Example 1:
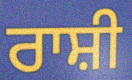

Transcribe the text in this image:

ਰਾਸ਼ੀ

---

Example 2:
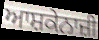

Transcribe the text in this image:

ਆਸ਼ਕੇਨਾਜ਼ੀ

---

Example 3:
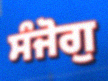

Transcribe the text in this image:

ਸੰਜੋਗੁ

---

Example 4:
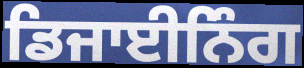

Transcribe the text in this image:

ਡਿਜਾਈਨਿੰਗ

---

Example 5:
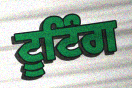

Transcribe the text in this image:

ਟੂਟਿੰਗ